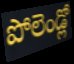
పోలెండ్లో